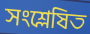
সংশ্লেষিত